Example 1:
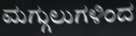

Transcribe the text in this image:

ಮಗ್ಗುಲುಗಳಿಂದ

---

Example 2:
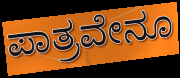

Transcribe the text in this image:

ಪಾತ್ರವೇನೂ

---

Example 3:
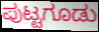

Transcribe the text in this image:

ಪುಟ್ಟಗೂಡು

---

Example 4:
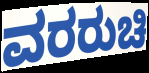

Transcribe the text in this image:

ವರರುಚಿ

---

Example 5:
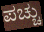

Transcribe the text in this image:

ಪಚ್ಚು